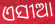
ଏସୀଆ